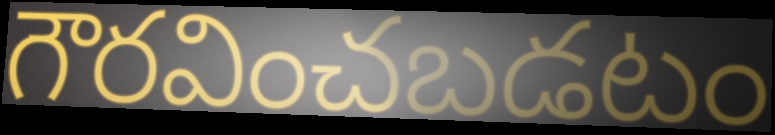
గౌరవించబడటం